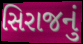
સિરાજનું